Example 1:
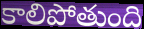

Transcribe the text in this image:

కాలిపోతుంది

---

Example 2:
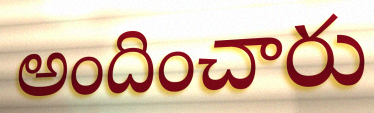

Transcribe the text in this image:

అందించారు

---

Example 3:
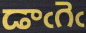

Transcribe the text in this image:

డాఁగెఁ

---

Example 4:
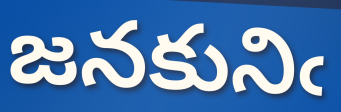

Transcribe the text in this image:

జనకునిఁ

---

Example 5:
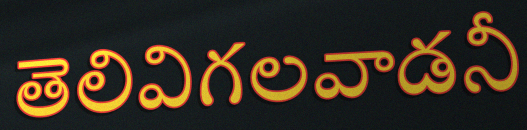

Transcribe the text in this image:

తెలివిగలవాడనీ